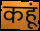
कहूं